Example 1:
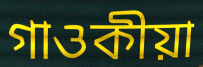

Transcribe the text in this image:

গাওকীয়া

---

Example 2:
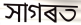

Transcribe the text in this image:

সাগৰত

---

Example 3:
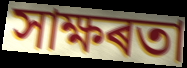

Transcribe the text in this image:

সাক্ষৰতা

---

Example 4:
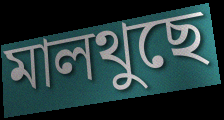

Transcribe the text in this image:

মালথুছে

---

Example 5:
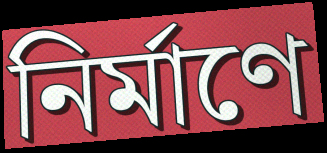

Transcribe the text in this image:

নিৰ্মাণে